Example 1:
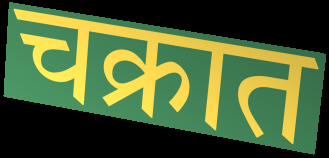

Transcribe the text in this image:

चक्रात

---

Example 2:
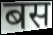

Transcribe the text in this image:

बस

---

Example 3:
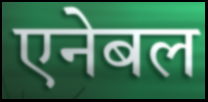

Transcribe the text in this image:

एनेबल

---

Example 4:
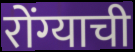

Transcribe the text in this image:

रोंग्याची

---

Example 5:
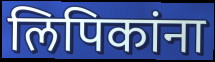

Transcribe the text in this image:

लिपिकांना